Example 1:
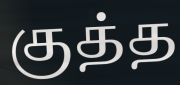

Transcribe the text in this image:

குத்த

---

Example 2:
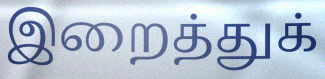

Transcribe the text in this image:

இறைத்துக்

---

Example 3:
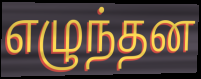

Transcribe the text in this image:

எழுந்தன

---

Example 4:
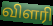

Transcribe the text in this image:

விளரி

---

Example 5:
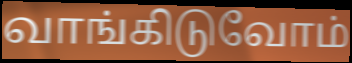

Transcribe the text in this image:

வாங்கிடுவோம்